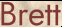
Brett